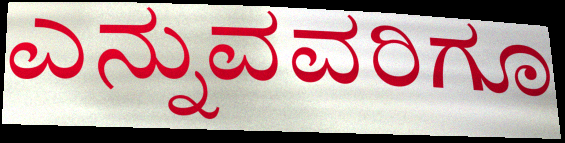
ಎನ್ನುವವರಿಗೂ